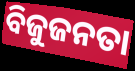
ବିଜୁଜନତା